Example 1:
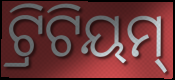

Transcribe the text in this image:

ଟ୍ରିଟିୟମ୍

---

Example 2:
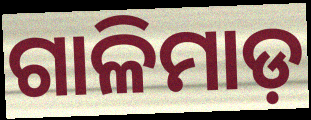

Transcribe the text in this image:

ଗାଳିମାଡ଼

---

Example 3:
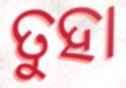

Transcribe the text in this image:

ତୁହା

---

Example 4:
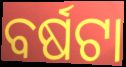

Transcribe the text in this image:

ବର୍ଷଟା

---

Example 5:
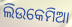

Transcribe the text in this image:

ଲିଉକେମିଆ